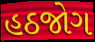
હઠજોગ